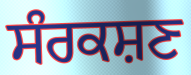
ਸੰਰਕਸ਼ਣ